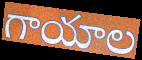
గాయాల